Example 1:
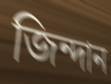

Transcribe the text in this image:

জিন্দান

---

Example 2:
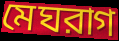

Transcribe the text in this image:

মেঘরাগ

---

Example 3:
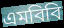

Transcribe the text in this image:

এমবিবি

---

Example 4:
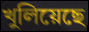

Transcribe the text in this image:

খুলিয়েছে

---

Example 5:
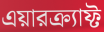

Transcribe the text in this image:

এয়ারক্র্যাফ্ট